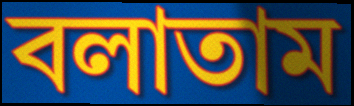
বলাতাম